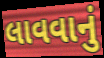
લાવવાનું